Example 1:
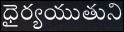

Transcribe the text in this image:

ధైర్యయుతుని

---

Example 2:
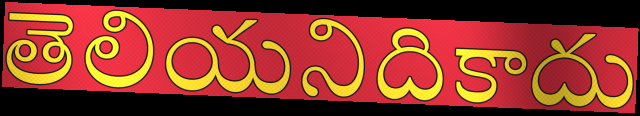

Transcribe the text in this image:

తెలియనిదికాదు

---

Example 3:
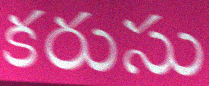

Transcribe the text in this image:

కరుసు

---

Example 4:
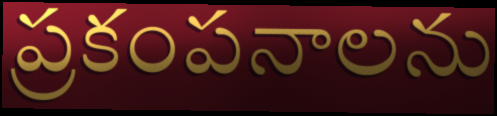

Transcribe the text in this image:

ప్రకంపనాలను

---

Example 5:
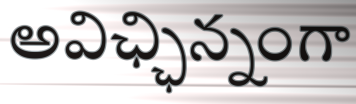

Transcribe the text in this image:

అవిఛ్ఛిన్నంగా